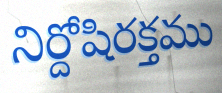
నిర్దోషిరక్తము